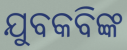
ଯୁବକବିଙ୍କ